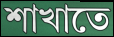
শাখাতে